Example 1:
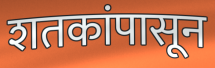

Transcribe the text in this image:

शतकांपासून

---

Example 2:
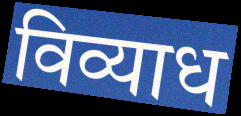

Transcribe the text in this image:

विव्याध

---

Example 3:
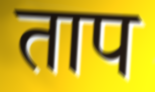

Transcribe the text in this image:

ताप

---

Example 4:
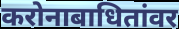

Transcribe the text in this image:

करोनाबाधितांवर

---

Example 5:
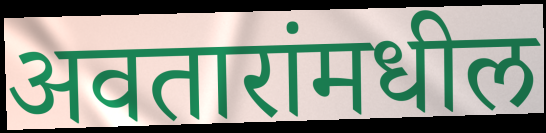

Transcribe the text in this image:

अवतारांमधील